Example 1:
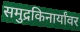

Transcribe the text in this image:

समुद्रकिनार्यांवर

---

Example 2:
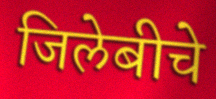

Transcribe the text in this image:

जिलेबीचे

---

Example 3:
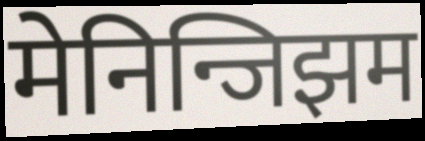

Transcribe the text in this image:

मेनिन्जिझम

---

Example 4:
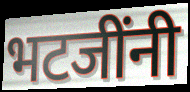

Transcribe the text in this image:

भटजींनी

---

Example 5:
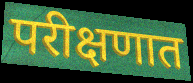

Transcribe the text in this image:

परीक्षणात